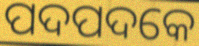
ପଦପଦକେ